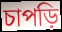
চাপড়ি